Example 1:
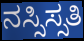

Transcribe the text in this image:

ನಸ್ಸಿಸ್ಸತಿ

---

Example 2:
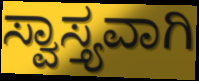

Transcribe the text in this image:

ಸ್ವಾಸ್ತ್ಯವಾಗಿ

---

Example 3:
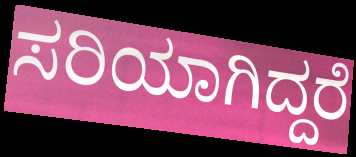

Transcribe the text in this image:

ಸರಿಯಾಗಿದ್ದರೆ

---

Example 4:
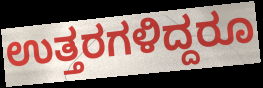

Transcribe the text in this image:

ಉತ್ತರಗಳಿದ್ದರೂ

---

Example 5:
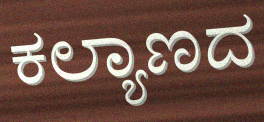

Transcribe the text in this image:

ಕಲ್ಯಾಣದ